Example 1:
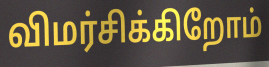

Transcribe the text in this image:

விமர்சிக்கிறோம்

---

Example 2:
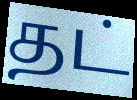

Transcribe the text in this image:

தட்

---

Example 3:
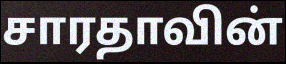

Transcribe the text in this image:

சாரதாவின்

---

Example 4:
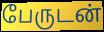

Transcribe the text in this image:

பேருடன்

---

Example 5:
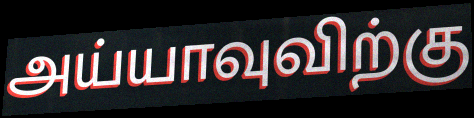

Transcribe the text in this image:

அய்யாவுவிற்கு